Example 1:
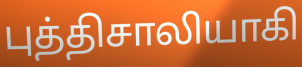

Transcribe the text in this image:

புத்திசாலியாகி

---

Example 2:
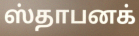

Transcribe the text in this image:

ஸ்தாபனக்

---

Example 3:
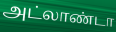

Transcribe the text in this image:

அட்லாண்டா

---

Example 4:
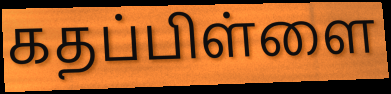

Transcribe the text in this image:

கதப்பிள்ளை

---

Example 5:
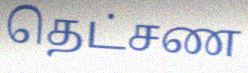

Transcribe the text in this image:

தெட்சண